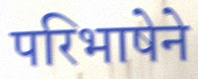
परिभाषेने